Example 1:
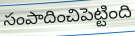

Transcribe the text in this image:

సంపాదించిపెట్టింది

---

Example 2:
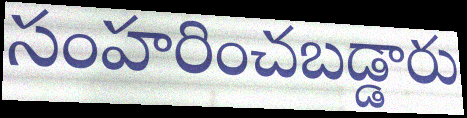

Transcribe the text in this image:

సంహరించబడ్డారు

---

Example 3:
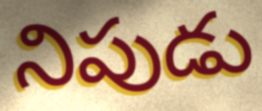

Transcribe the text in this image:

నిపుడు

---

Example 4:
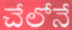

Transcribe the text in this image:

చేలోనే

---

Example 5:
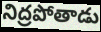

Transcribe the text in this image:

నిద్రపోతాడు